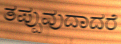
ತಪ್ಪುವುದಾದರೆ